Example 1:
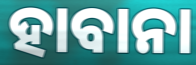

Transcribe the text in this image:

ହାବାନା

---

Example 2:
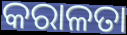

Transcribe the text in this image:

କରାଳତା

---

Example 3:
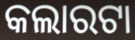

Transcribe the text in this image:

କଲାରଟା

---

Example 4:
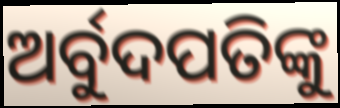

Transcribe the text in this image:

ଅର୍ବୁଦପତିଙ୍କୁ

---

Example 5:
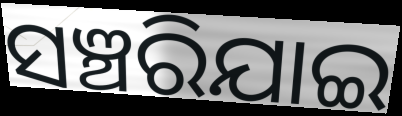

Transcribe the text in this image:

ସଞ୍ଚରିଯାଇ